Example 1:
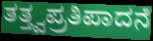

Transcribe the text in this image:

ತತ್ತ್ವಪ್ರತಿಪಾದನೆ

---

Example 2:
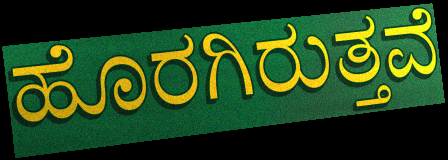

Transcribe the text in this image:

ಹೊರಗಿರುತ್ತವೆ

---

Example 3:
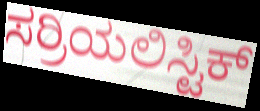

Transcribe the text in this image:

ಸರ್ರಿಯಲಿಸ್ಟಿಕ್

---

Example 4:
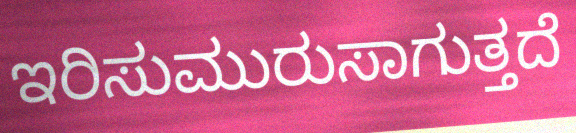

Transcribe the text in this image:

ಇರಿಸುಮುರುಸಾಗುತ್ತದೆ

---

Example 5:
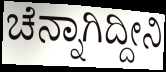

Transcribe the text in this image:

ಚೆನ್ನಾಗಿದ್ದೀನಿ